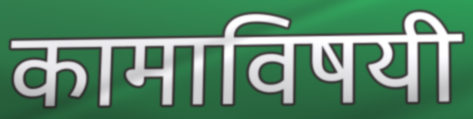
कामाविषयी